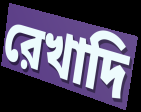
রেখাদি